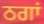
ਠਗਾਂ